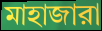
মাহাজারা